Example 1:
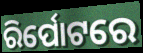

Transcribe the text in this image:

ରିର୍ପୋଟରେ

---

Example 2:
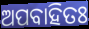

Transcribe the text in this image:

ଅପବାହିତଃ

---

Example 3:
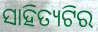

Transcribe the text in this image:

ସାହିତ୍ୟଟିର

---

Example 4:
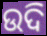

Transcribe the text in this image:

ଉଦି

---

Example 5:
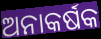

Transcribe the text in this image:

ଅନାକର୍ଷକ